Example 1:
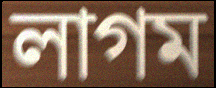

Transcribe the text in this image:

লাগম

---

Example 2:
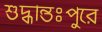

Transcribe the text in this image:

শুদ্ধান্তঃপুরে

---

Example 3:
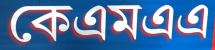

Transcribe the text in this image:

কেএমএএ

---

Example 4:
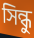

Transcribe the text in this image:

সিন্ধু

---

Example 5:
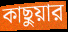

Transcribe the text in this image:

কাছুয়ার